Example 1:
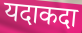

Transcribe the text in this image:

यदाकदा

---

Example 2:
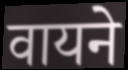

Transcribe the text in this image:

वायने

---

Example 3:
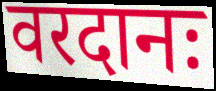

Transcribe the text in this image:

वरदानः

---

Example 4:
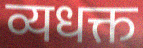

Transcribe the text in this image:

व्यधक्त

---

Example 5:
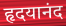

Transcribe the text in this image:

हृदयानंद